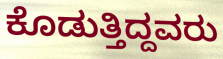
ಕೊಡುತ್ತಿದ್ದವರು